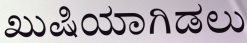
ಖುಷಿಯಾಗಿಡಲು